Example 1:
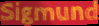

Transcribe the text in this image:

Sigmund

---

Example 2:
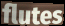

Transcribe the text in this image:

flutes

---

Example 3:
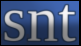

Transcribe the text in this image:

snt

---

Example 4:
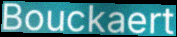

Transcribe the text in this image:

Bouckaert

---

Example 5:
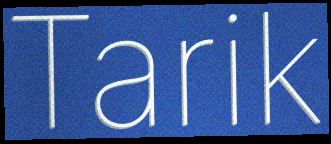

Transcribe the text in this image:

Tarik